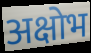
अक्षोभ